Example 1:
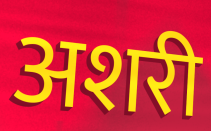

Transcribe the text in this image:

अशरी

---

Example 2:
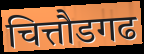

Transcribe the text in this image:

चित्तौडगढ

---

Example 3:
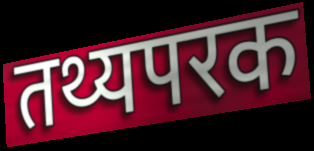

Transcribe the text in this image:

तथ्यपरक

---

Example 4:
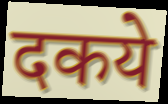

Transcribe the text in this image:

दकये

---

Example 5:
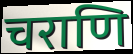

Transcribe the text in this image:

चराणि